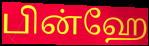
பின்ஹே